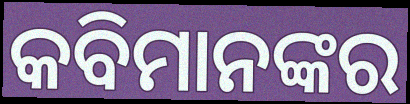
କବିମାନଙ୍କର